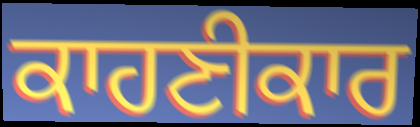
ਕਾਹਣੀਕਾਰ